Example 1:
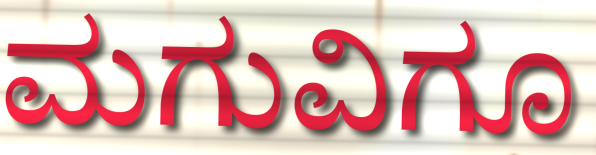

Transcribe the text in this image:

ಮಗುವಿಗೂ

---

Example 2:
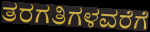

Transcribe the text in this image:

ತರಗತಿಗಳವರೆಗೆ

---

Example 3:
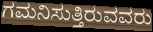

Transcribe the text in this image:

ಗಮನಿಸುತ್ತಿರುವವರು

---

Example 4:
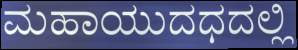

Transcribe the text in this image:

ಮಹಾಯುದಧದಲ್ಲಿ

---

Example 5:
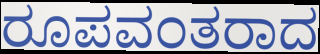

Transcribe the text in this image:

ರೂಪವಂತರಾದ